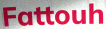
Fattouh